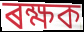
ৰক্ষক